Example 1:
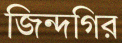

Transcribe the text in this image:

জিন্দগির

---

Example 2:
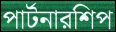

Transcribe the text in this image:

পার্টনারশিপ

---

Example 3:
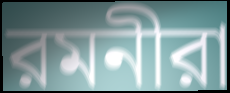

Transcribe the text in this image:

রমনীরা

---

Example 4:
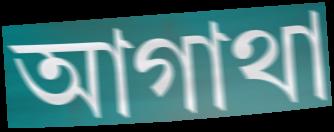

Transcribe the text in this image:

আগাথা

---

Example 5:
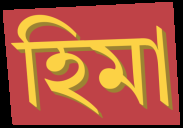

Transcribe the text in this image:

হিমা